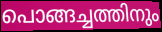
പൊങ്ങച്ചത്തിനും